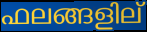
ഫലങ്ങളില്